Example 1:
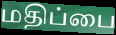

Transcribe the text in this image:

மதிப்பை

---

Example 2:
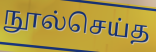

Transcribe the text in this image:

நூல்செய்த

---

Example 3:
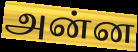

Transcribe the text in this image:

அன்ன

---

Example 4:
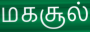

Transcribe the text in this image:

மகசூல்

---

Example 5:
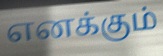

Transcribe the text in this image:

எனக்கும்